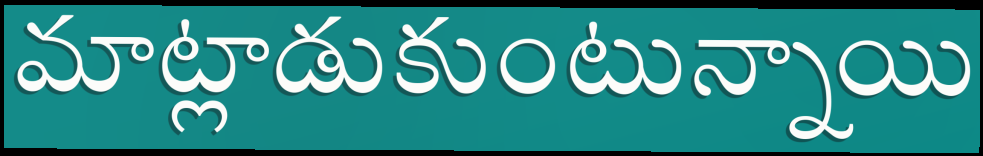
మాట్లాడుకుంటున్నాయి